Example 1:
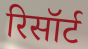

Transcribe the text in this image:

रिसॉर्ट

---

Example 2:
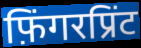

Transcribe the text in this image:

फ़िंगरप्रिंट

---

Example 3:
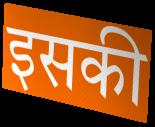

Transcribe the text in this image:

इसकी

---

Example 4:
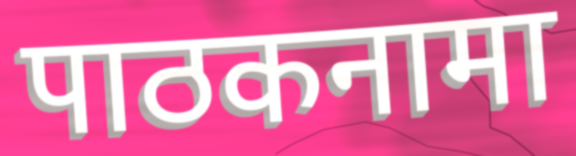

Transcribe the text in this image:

पाठकनामा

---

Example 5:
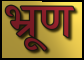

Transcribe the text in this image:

भ्रूण